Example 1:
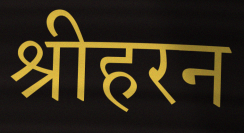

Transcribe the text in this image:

श्रीहरन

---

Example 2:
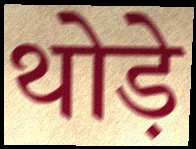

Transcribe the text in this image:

थोड़े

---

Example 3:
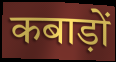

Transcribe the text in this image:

कबाड़ों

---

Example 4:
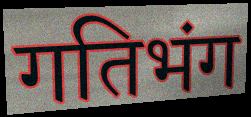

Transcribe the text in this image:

गतिभंग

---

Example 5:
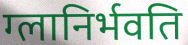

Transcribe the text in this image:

ग्लानिर्भवति